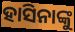
ହାସିନାଙ୍କୁ